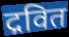
द्रवित